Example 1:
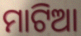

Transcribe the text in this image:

ମାଟିଆ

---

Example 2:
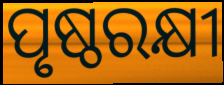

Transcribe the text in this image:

ପୃଷ୍ଠରକ୍ଷୀ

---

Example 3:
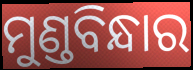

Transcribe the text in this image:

ମୁଣ୍ଡବିନ୍ଧାର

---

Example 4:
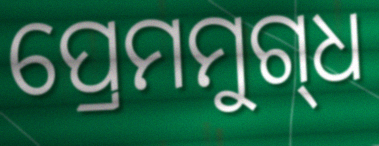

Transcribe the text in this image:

ପ୍ରେମମୁଗ୍‌ଧ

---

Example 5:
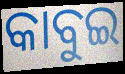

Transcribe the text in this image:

କାବୁଇ